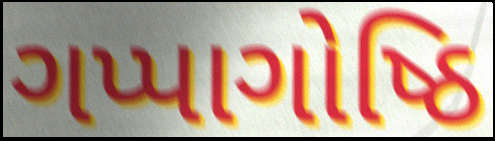
ગપ્પાગોષ્ઠિ